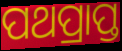
ପଥପ୍ରାପ୍ତ